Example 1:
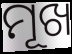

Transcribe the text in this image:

ମୂଖ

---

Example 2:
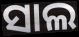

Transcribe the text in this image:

ସାଲ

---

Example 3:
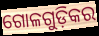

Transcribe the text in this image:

ଗୋଳଗୁଡ଼ିକର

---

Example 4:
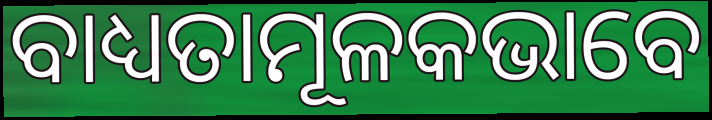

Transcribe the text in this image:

ବାଧ୍ୟତାମୂଳକଭାବେ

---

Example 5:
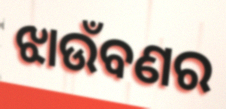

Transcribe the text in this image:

ଝାଉଁବଣର